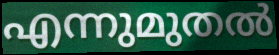
എന്നുമുതൽ